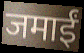
जमाईं